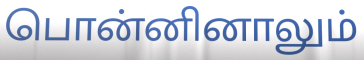
பொன்னினாலும்